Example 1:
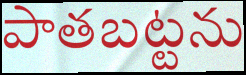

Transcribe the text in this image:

పాతబట్టను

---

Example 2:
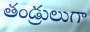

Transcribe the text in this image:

తండ్రులుగా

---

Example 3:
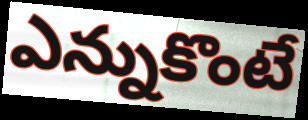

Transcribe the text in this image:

ఎన్నుకొంటే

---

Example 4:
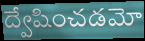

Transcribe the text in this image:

ద్వేషించడమో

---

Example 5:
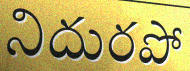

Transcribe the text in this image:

నిదురపో